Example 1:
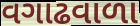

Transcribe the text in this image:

વગાઢવાળા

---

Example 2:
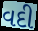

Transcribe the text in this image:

વદી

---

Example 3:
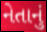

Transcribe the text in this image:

નેતાનું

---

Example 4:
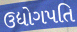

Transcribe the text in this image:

ઉદ્યોગપતિ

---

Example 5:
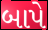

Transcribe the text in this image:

બાપે